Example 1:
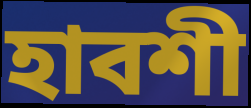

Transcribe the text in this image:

হাবশী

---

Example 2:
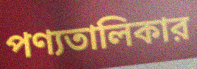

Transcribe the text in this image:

পণ্যতালিকার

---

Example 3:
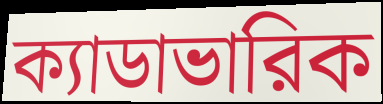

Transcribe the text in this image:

ক্যাডাভারিক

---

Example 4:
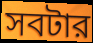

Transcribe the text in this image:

সবটার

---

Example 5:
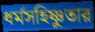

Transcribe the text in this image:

ধর্মসহিষ্ণুতার